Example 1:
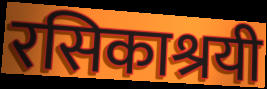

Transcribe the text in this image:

रसिकाश्रयी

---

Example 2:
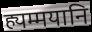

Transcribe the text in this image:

ह्यम्मयानि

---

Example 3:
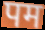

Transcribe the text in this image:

पम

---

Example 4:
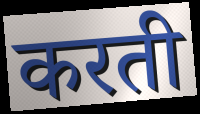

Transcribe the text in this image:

करती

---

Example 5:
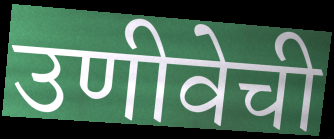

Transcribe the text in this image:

उणीवेची